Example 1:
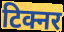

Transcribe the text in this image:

टिक्नर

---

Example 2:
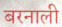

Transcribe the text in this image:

बरनाली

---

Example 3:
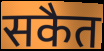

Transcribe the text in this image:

सकैत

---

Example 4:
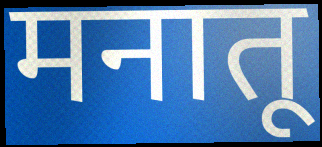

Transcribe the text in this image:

मनातू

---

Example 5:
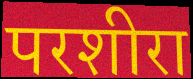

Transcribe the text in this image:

परशीरा